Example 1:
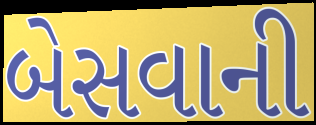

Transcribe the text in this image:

બેસવાની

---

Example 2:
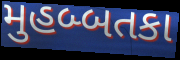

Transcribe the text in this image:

મુહબ્બતકા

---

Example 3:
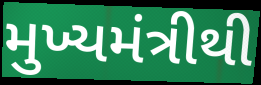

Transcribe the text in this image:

મુખ્યમંત્રીથી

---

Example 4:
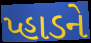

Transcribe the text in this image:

પ્હાડને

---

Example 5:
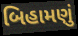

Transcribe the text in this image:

બિહામણું